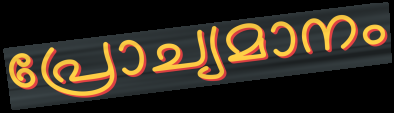
പ്രോച്യമാനം